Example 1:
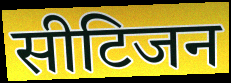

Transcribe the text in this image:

सीटिजन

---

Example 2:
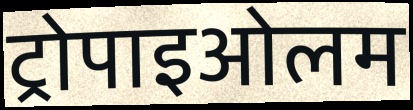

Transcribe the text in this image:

ट्रोपाइओलम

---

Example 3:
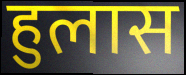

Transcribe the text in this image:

हुलास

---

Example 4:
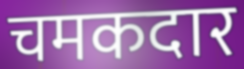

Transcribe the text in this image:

चमकदार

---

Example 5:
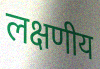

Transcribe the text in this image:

लक्षणीय